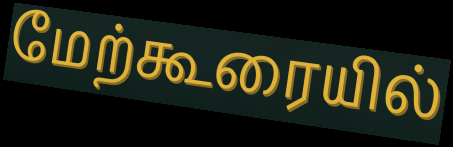
மேற்கூரையில்